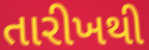
તારીખથી